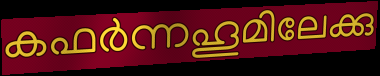
കഫർന്നഹൂമിലേക്കു